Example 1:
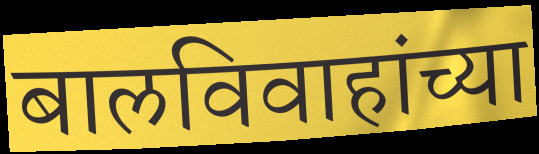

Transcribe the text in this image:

बालविवाहांच्या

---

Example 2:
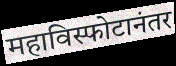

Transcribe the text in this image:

महाविस्फोटानंतर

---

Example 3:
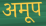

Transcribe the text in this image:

अमूप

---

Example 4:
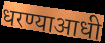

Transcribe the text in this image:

धरण्याआधी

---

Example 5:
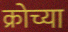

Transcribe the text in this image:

क्रोच्या